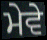
ਮੇਵੇ